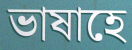
ভাষাহে